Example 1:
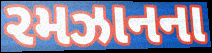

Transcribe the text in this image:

રમઝાનના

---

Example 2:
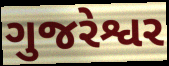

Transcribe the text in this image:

ગુજરેશ્વર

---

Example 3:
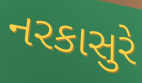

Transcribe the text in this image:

નરકાસુરે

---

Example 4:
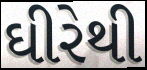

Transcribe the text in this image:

ઘીરેથી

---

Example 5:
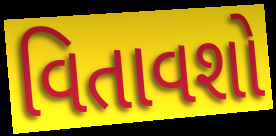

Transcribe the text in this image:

વિતાવશો